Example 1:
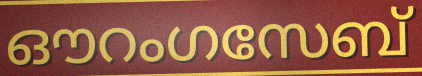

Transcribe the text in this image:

ഔറംഗസേബ്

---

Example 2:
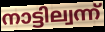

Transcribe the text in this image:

നാട്ടില്വന്ന്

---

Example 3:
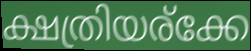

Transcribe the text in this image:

ക്ഷത്രിയര്ക്കേ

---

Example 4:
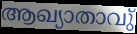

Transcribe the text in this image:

ആഖ്യാതാവു്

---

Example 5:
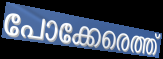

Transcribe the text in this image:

പോക്കേരെത്ത്